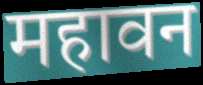
महावन